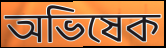
অভিষেক